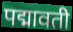
पद्मावती